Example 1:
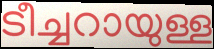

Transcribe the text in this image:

ടീച്ചറായുള്ള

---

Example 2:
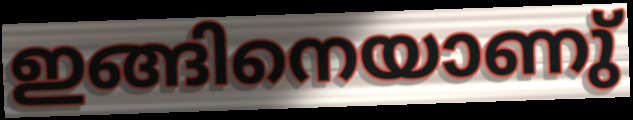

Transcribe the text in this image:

ഇങ്ങിനെയാണു്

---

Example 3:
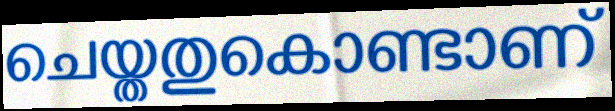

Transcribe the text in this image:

ചെയ്തതുകൊണ്ടാണ്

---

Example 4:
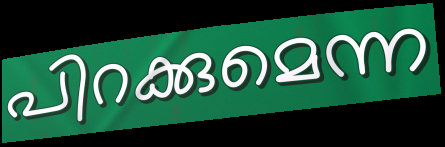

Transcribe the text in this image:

പിറക്കുമെന്ന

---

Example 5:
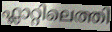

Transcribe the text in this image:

ഫ്ലാറ്റിലെത്തി